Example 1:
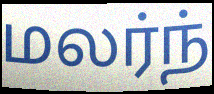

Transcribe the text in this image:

மலர்ந்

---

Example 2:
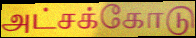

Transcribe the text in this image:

அட்சக்கோடு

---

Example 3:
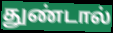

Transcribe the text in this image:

துண்டால்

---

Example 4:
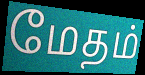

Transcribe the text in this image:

மேதம்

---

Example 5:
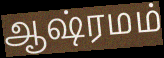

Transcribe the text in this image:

ஆஷ்ரமம்